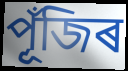
পূঁজিৰ